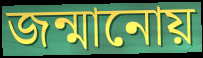
জন্মানোয়